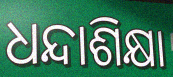
ଧନ୍ଦାଶିକ୍ଷା